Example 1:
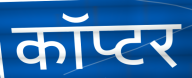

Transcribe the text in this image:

कॉप्टर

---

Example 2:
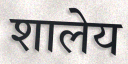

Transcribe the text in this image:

शालेय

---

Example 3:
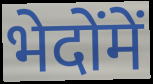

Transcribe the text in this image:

भेदोंमें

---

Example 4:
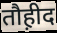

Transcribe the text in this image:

तौह़ीद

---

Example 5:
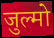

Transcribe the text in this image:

जुल्मो